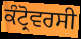
ਕੰਟ੍ਰੋਵਰਸੀ